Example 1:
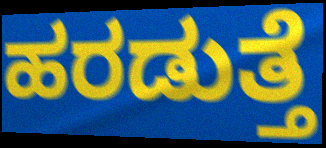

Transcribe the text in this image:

ಹರಡುತ್ತೆ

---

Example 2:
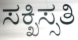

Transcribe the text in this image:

ಸಕ್ಖಿಸ್ಸತಿ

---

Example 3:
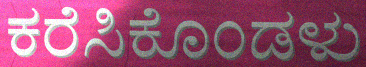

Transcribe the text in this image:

ಕರೆಸಿಕೊಂಡಳು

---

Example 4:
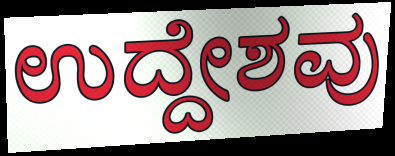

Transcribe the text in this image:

ಉದ್ದೇಶವು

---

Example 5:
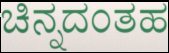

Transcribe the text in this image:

ಚಿನ್ನದಂತಹ